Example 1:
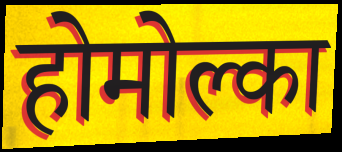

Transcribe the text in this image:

होमोल्का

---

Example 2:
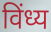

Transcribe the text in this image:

विंध्य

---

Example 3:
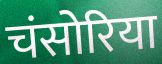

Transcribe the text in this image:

चंसोरिया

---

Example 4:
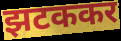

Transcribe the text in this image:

झटककर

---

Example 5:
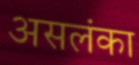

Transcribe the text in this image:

असलंका